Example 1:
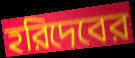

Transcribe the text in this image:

হরিদেবের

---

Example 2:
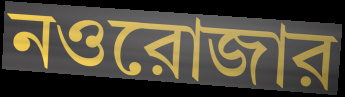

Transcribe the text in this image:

নওরোজার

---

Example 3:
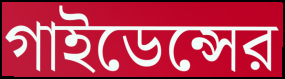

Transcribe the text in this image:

গাইডেন্সের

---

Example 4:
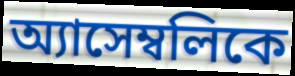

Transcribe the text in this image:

অ্যাসেম্বলিকে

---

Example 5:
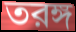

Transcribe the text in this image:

তরঙ্গ